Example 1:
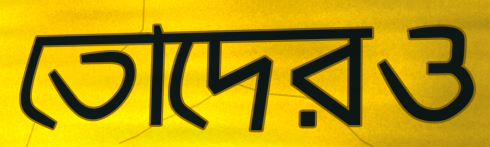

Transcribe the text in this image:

তোদেরও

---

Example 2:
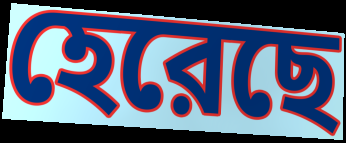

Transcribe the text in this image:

হেরেছে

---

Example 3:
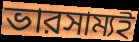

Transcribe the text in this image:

ভারসাম্যই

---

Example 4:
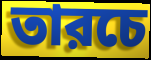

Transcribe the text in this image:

তারচে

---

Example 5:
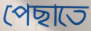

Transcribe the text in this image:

পেছাতে